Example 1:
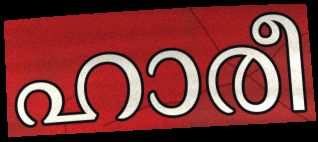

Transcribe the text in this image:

ഹാരീ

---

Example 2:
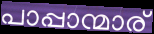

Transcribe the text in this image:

പാപ്പാന്മാര്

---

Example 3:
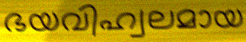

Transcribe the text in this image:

ഭയവിഹ്വലമായ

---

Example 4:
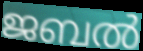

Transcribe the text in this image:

ജബൽ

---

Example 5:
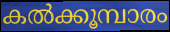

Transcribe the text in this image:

കൽക്കൂമ്പാരം